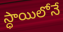
స్ధాయిలోనే